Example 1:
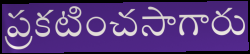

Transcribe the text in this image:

ప్రకటించసాగారు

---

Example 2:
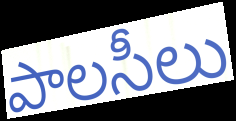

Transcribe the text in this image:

పాలసీలు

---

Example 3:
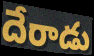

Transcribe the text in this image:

దేరాడు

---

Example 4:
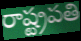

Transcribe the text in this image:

రాష్ట్రపతి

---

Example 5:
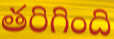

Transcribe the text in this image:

తరిగింది